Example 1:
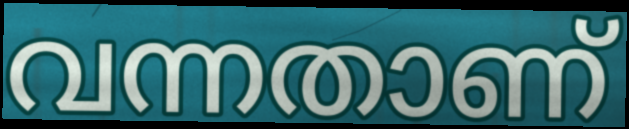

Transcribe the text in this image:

വന്നതാണ്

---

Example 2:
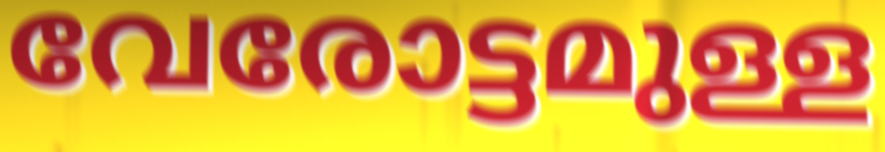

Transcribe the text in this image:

വേരോട്ടമുള്ള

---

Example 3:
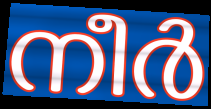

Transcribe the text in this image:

നീർ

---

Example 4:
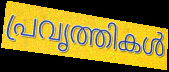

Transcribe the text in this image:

പ്രവൃത്തികൾ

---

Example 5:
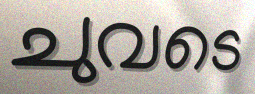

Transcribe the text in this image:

ചുവടെ